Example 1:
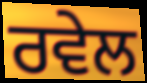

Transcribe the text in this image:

ਰਵੇਲ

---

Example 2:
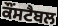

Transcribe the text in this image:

ਕੌਂਸਟੈਬਲ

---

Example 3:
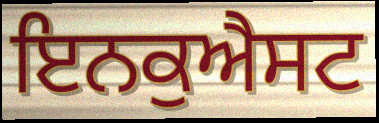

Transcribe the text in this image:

ਇਨਕੁਐਸਟ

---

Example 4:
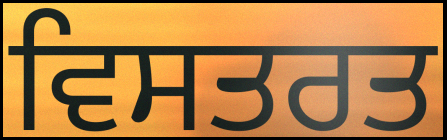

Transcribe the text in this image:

ਵਿਸਤਰਤ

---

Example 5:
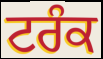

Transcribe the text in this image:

ਟਰੰਕ